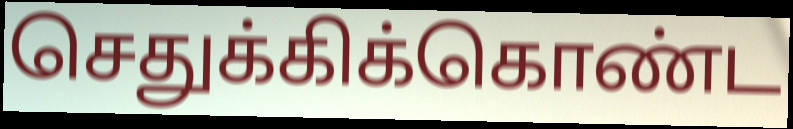
செதுக்கிக்கொண்ட